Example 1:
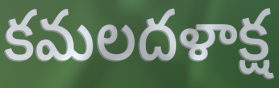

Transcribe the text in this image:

కమలదళాక్ష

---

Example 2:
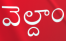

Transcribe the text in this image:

వెల్దాం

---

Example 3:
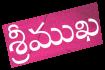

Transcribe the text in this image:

శ్రీముఖ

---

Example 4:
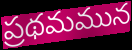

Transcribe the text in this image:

ప్రథమమున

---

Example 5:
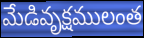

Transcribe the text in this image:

మేడివృక్షములంత